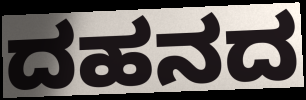
ದಹನದ